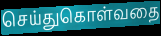
செய்துகொள்வதை